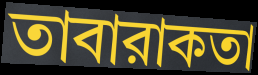
তাবারাকতা